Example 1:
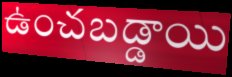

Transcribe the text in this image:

ఉంచబడ్డాయి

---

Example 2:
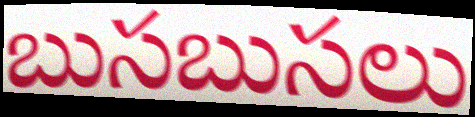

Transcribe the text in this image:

బుసబుసలు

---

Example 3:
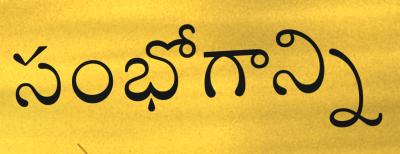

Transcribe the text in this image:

సంభోగాన్ని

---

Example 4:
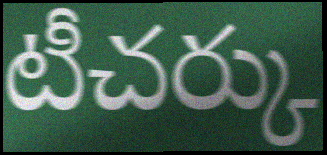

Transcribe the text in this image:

టీచర్కు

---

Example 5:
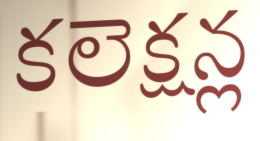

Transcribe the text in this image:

కలెక్షన్ల